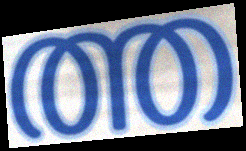
ത്ത